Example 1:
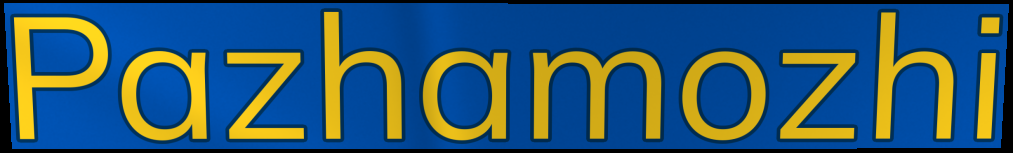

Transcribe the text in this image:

Pazhamozhi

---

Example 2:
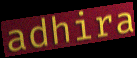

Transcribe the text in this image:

adhira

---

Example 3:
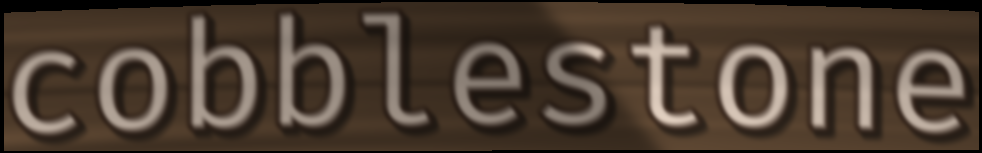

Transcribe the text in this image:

cobblestone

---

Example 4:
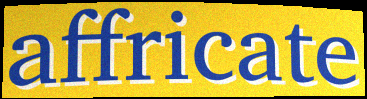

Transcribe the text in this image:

affricate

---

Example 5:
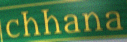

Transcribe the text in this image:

chhana